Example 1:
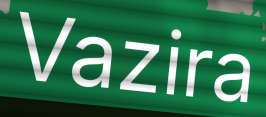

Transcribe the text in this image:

Vazira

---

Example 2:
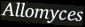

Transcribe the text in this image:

Allomyces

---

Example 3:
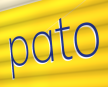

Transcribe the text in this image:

pato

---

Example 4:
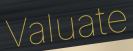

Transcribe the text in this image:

Valuate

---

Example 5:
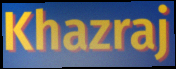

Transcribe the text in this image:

Khazraj